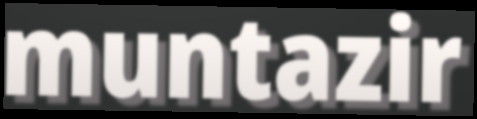
muntazir